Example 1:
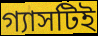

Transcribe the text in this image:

গ্যাসটিই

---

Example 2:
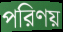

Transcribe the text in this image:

পরিণয়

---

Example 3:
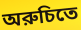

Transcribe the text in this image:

অরুচিতে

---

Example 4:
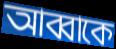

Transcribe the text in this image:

আব্বাকে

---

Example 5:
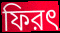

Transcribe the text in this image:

ফিরৎ